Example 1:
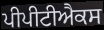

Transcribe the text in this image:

ਪੀਪੀਟੀਐਕਸ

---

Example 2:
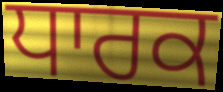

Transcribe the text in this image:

ਧਾਰਕ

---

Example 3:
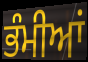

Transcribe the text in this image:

ਭੰਮੀਆਂ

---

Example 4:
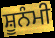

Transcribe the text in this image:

ਸ਼ੂਨੰਮੀ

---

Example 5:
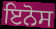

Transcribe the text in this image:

ਇਨੋਸ